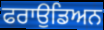
ਫਰਾਉਡਿਅਨ